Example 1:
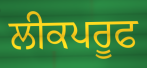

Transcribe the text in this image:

ਲੀਕਪਰੂਫ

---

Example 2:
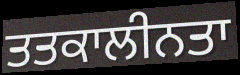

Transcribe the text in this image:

ਤਤਕਾਲੀਨਤਾ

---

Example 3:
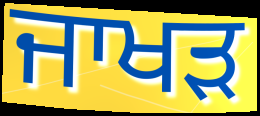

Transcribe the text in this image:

ਜਾਖੜ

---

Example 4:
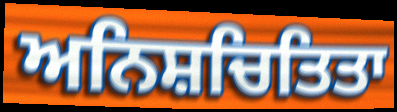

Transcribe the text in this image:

ਅਨਿਸ਼ਚਿਤਿਤਾ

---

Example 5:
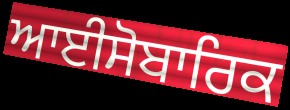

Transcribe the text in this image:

ਆਈਸੋਬਾਰਿਕ